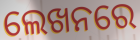
ଲେଖନରେ